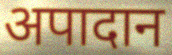
अपादान